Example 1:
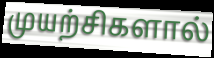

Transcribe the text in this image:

முயற்சிகளால்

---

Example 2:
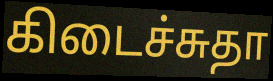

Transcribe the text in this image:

கிடைச்சுதா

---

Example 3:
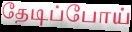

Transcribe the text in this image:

தேடிப்போய்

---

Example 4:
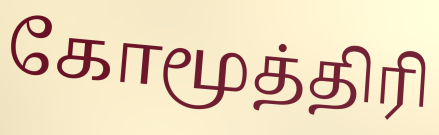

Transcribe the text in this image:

கோமூத்திரி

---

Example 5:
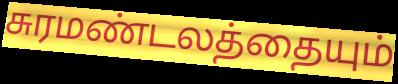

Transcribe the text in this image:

சுரமண்டலத்தையும்